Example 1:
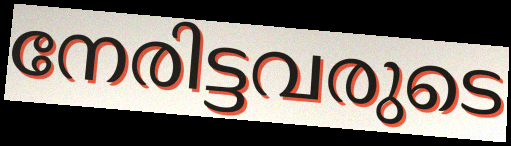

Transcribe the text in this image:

നേരിട്ടവരുടെ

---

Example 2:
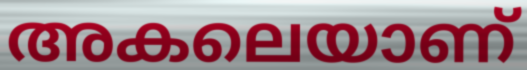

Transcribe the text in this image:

അകലെയാണ്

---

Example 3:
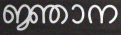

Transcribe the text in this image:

ജ്ഞാന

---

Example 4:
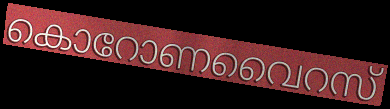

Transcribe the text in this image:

കൊറോണവൈറസ്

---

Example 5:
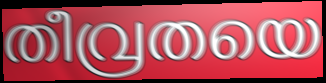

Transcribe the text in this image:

തീവ്രതയെ